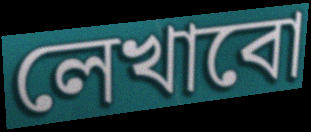
লেখাবো